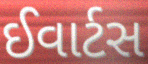
ઈવાર્ટસ